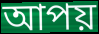
আপয়